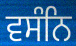
ਵਸੰਨਿ